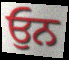
ਓੁਨ